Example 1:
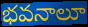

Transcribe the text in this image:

భవనాలూ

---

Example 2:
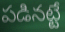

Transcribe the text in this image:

పడినట్టే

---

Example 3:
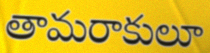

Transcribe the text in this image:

తామరాకులూ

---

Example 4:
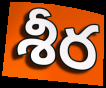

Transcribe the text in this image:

శీర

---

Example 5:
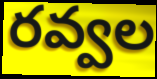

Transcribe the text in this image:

రవ్వల